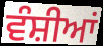
ਵੰਸ਼ੀਆਂ